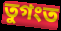
তুগংত